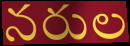
నరుల